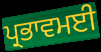
ਪ੍ਰਭਾਵਮਈ